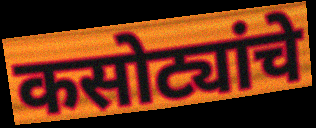
कसोट्यांचे